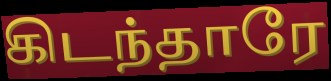
கிடந்தாரே